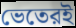
ভেতেরই